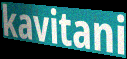
kavitani